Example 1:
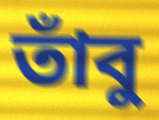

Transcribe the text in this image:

তাঁবু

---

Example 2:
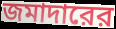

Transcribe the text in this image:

জমাদারের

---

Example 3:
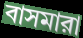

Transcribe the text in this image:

বাসমারা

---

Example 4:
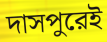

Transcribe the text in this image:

দাসপুরেই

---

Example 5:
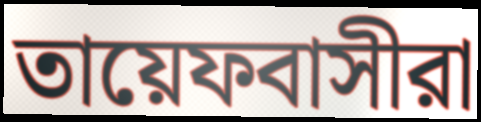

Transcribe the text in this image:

তায়েফবাসীরা